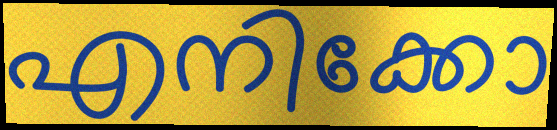
എനിക്കോ